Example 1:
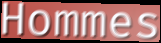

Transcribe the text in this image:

Hommes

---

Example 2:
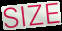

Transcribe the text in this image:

SIZE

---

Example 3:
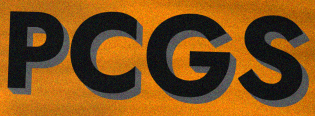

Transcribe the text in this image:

PCGS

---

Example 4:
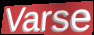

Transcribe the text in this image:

Varse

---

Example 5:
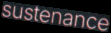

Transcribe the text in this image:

sustenance